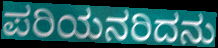
ಪರಿಯನರಿದನು